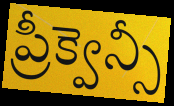
ప్రీక్వెన్సీ